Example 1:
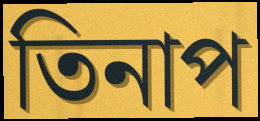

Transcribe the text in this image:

তিনাপ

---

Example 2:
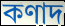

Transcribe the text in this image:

কণাদ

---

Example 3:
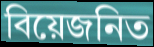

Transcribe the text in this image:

বিয়েজনিত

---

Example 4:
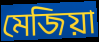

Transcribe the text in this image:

মেজিয়া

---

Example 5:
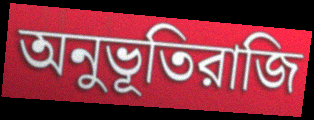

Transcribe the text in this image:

অনুভূতিরাজি